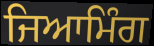
ਜਿਆਮਿੰਗ